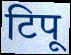
टिपू